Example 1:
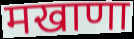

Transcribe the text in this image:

मखाणा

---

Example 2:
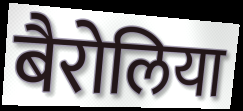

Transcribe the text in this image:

बैरोलिया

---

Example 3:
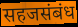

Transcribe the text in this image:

सहजसंबंध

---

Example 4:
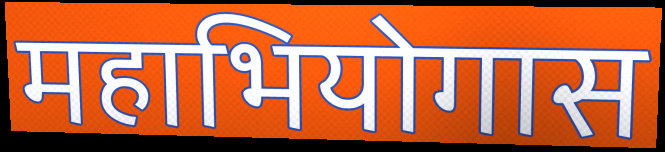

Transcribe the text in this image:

महाभियोगास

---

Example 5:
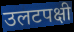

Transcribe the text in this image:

उलटपक्षी